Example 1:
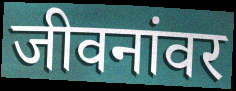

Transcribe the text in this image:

जीवनांवर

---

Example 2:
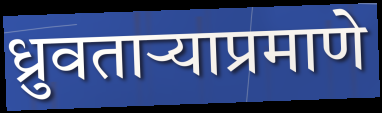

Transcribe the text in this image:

ध्रुवताऱ्याप्रमाणे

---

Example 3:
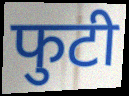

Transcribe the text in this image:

फुटी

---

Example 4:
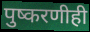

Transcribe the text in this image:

पुष्करणीही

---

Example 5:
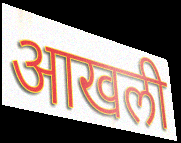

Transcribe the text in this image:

आखली